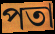
পতা